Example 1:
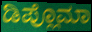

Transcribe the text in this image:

ಡಿಪ್ಲೊಮಾ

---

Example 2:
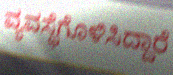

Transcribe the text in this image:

ವ್ಯವಸ್ಥೆಗೊಳಿಸಿದ್ದಾರೆ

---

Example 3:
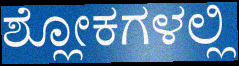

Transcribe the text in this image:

ಶ್ಲೋಕಗಳಲ್ಲಿ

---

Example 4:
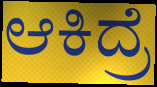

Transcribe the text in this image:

ಆಕಿದ್ರೆ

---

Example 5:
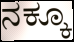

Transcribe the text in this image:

ನಕ್ಕೂ